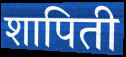
शापिती